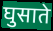
घुसाते